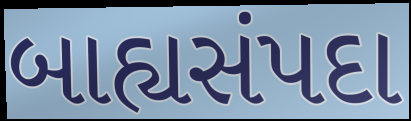
બાહ્યસંપદા